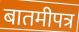
बातमीपत्र